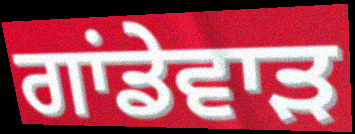
ਗਾਂਡੇਵਾੜ